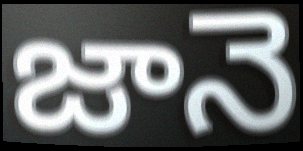
జానె